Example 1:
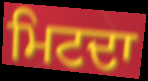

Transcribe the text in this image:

ਮਿਟਦਾ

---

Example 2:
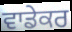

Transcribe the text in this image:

ਵਾਡੇਕਰ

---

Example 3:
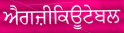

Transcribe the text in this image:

ਐਗਜ਼ੀਕਿਊਟੇਬਲ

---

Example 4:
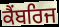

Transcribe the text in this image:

ਕੈਂਬਰਿਜ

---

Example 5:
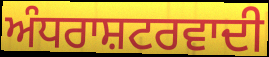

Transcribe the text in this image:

ਅੰਧਰਾਸ਼ਟਰਵਾਦੀ